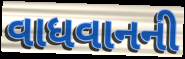
વાધવાનની